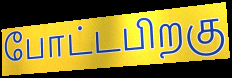
போட்டபிறகு